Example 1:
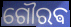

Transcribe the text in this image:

ଗୌରଵ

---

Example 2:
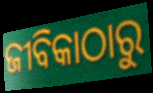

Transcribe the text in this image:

ଜୀବିକାଠାରୁ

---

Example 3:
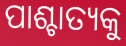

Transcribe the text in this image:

ପାଶ୍ଚାତ୍ୟକୁ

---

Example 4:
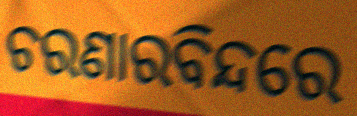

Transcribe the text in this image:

ଚରଣାରବିନ୍ଦରେ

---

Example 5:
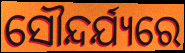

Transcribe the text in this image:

ସୌନ୍ଦର୍ଯ୍ୟରେ